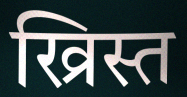
ख्रिस्त